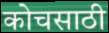
कोचसाठी